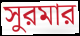
সুরমার